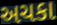
અચકા